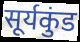
सूर्यकुंड